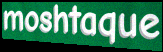
moshtaque